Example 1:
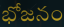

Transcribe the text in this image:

భోజనం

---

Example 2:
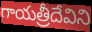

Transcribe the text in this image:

గాయత్రీదేవిని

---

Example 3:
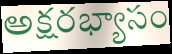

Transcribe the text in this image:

అక్షరభ్యాసం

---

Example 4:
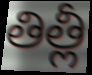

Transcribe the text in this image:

తిత్లీ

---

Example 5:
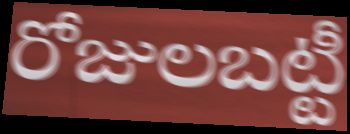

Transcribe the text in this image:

రోజులబట్టీ